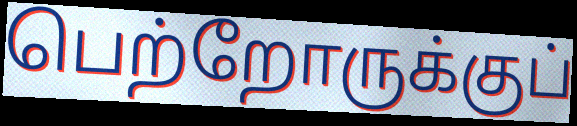
பெற்றோருக்குப்